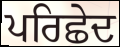
ਪਰਿਛੇਦ